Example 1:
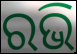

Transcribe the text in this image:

ରଭି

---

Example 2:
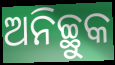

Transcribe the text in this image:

ଅନିଚ୍ଛୁକ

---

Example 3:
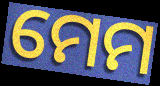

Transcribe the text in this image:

ମେମ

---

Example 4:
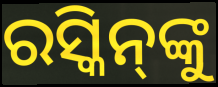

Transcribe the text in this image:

ରସ୍କିନ୍‌ଙ୍କୁ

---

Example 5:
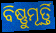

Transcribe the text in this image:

ବିଷ୍ଣୁମୂର୍ତ୍ତି